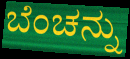
ಬೆಂಚನ್ನು